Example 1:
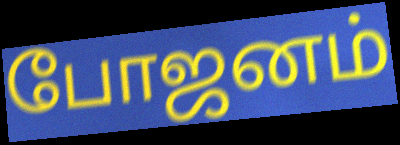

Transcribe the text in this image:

போஜனம்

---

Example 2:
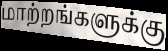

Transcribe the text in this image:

மாற்றங்களுக்கு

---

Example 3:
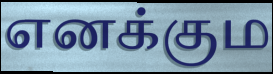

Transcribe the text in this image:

எனக்கும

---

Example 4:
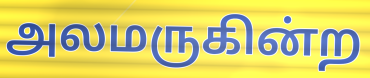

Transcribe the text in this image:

அலமருகின்ற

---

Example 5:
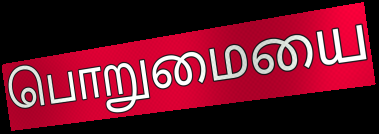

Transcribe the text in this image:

பொறுமையை